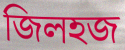
জিলহজ